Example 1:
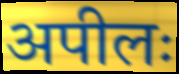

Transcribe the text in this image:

अपीलः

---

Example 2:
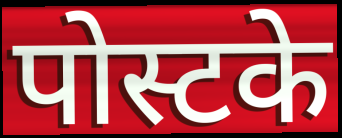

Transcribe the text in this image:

पोस्टके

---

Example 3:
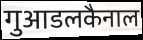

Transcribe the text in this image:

गुआडलकैनाल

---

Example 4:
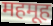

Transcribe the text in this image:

महमूह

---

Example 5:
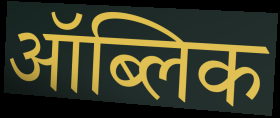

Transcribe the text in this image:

ऑब्लिक